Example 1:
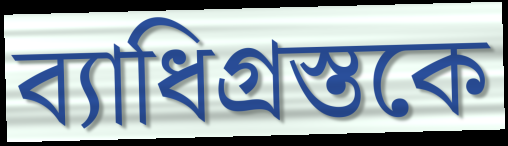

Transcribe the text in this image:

ব্যাধিগ্রস্তকে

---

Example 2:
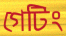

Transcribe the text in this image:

গেটিং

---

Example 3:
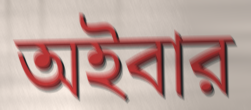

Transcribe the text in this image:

অইবার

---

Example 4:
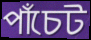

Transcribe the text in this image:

পাঁচেট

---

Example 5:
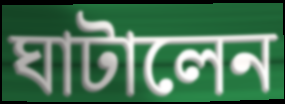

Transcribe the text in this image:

ঘাটালেন